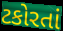
ટકોરતાં